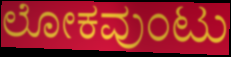
ಲೋಕವುಂಟು